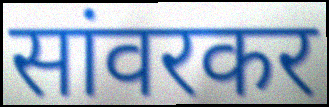
सांवरकर